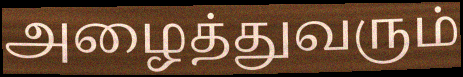
அழைத்துவரும்